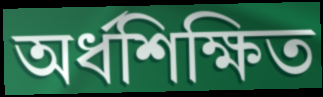
অর্ধশিক্ষিত